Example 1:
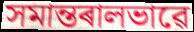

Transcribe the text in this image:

সমান্তৰালভাৱে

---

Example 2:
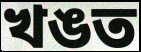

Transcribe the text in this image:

খঙত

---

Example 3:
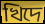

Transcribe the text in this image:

খিদে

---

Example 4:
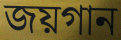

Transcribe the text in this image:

জয়গান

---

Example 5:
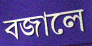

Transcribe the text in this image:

বজালে